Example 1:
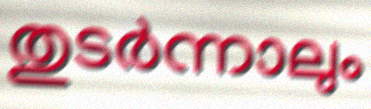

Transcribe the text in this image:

തുടർന്നാലും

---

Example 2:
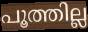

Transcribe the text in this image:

പൂത്തില്ല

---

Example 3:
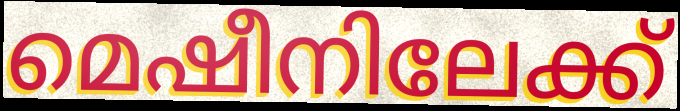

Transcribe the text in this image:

മെഷീനിലേക്ക്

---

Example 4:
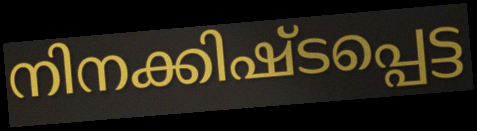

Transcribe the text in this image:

നിനക്കിഷ്ടപ്പെട്ട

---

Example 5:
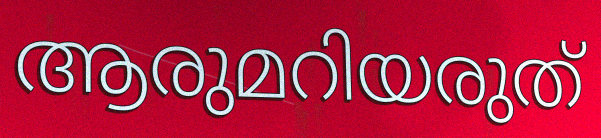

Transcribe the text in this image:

ആരുമറിയരുത്